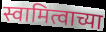
स्वामित्वाच्या